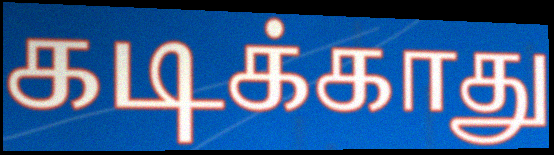
கடிக்காது